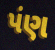
પંણ